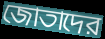
জোতাদের